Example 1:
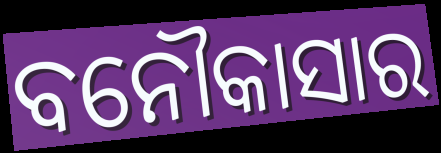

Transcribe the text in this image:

ବନୌକାସାର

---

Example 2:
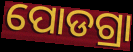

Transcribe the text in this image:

ପୋଡଗ୍ରା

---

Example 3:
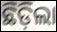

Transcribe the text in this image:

ଛିଡ଼ିଲା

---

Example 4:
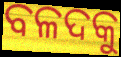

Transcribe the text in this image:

ବଳଦକୁ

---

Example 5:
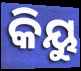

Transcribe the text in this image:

କିୟୁ